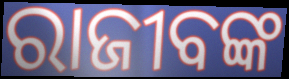
ରାଜୀବଙ୍କ